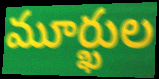
మూర్ఖుల